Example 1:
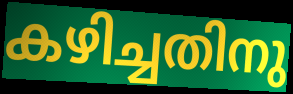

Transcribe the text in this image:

കഴിച്ചതിനു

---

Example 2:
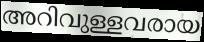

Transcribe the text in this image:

അറിവുള്ളവരായ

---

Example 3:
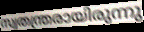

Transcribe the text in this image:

സ്വതന്ത്രരായിരുന്നു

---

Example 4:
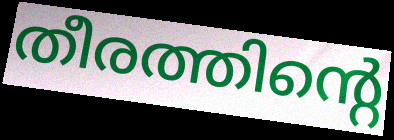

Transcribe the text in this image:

തീരത്തിന്റെ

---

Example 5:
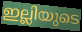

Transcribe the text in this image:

ഇല്ലിയുടെ